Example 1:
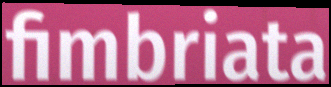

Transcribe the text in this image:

fimbriata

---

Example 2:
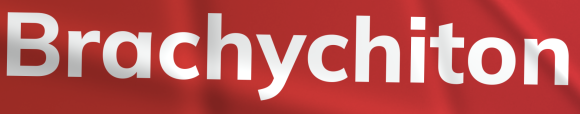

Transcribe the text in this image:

Brachychiton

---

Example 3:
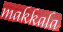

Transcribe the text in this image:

makkala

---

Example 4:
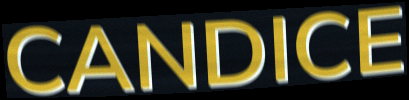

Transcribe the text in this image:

CANDICE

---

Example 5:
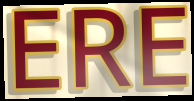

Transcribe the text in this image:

ERE